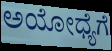
ಅಯೋಧ್ಯೆಗೆ